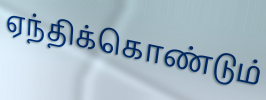
ஏந்திக்கொண்டும்